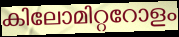
കിലോമിറ്ററോളം